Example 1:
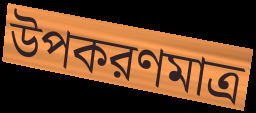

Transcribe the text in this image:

উপকরণমাত্র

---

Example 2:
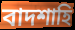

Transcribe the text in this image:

বাদশাহি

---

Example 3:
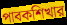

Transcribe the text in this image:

পাবকশিখার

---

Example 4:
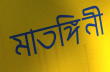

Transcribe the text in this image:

মাতঙ্গিনী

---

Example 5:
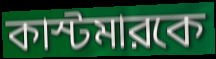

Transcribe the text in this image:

কাস্টমারকে